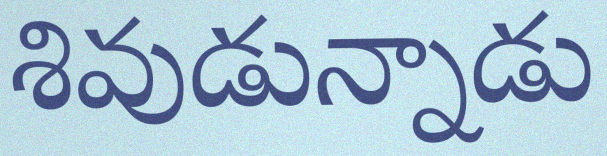
శివుడున్నాడు